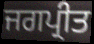
ਜਗਪ੍ਰੀਤ